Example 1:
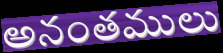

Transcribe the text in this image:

అనంతములు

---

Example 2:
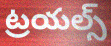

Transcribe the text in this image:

ట్రయల్స్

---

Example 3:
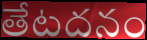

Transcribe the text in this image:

తేటదనం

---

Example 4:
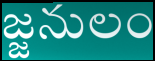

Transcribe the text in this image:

జ్జనులం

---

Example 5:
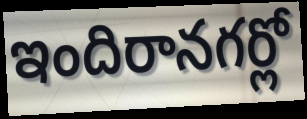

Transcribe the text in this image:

ఇందిరానగర్లో